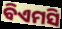
ବିଏମସି